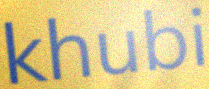
khubi